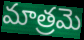
మాత్రమె